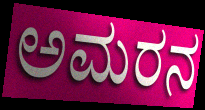
ಅಮರನ